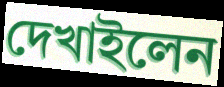
দেখাইলেন